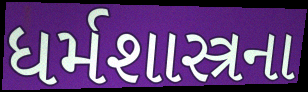
ધર્મશાસ્ત્રના